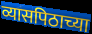
व्यासपिठाच्या